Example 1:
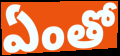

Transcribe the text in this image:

ఏంతో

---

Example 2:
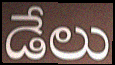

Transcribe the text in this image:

డేలు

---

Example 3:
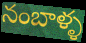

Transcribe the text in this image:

నంబాళ్ళ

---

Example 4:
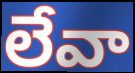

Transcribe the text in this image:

లేవా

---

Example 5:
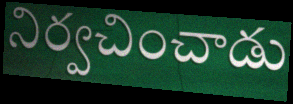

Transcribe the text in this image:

నిర్వచించాడు